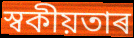
স্বকীয়তাৰ